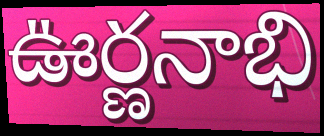
ఊర్ణనాభి